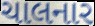
ચાલનાર